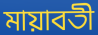
মায়াবতী